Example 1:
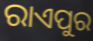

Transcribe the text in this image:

ରାଏପୁର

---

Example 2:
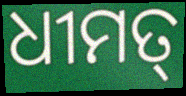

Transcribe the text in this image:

ଧୀମତ୍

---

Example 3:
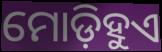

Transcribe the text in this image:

ମୋଡ଼ିହୁଏ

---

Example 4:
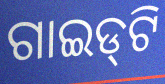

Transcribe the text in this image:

ଗାଇଡ୍‌ଟି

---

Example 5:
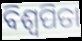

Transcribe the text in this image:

ବିଶ୍ୱପିତା